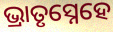
ଭ୍ରାତୃସ୍ନେହେ